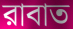
রাবাত